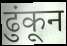
ढुंकून